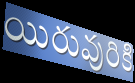
యిరువురికి